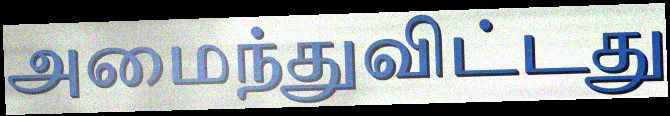
அமைந்துவிட்டது